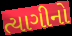
ત્યાગીનો